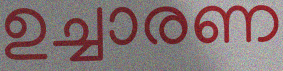
ഉച്ചാരണ